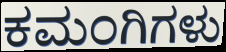
ಕಮಂಗಿಗಳು